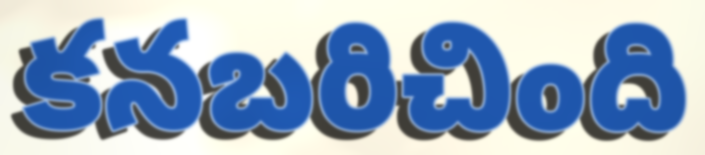
కనబరిచింది